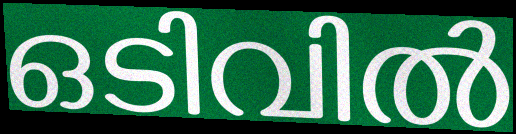
ഒടിവിൽ